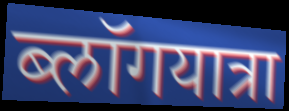
ब्लॉगयात्रा